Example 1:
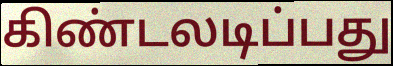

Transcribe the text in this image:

கிண்டலடிப்பது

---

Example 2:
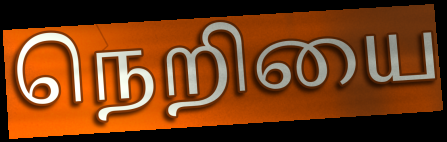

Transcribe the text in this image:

நெறியை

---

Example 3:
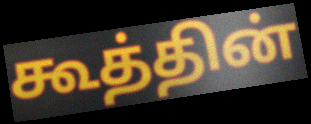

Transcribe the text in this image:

கூத்தின்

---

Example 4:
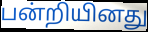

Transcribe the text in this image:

பன்றியினது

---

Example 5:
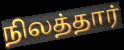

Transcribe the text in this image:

நிலத்தார்